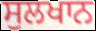
ਸੁਲਖਾਨ